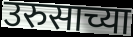
उरुसाच्या